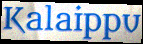
Kalaippu